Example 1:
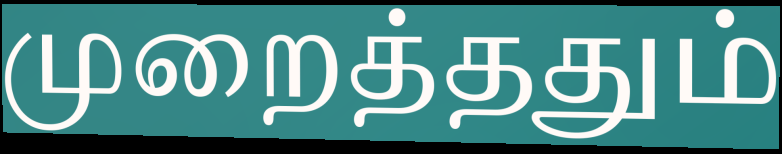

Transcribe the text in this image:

முறைத்ததும்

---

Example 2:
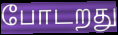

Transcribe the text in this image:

போடறது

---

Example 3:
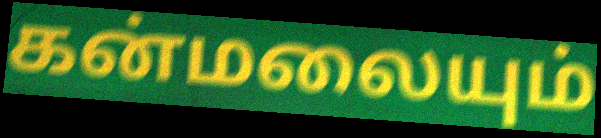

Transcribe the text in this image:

கன்மலையும்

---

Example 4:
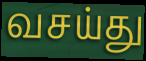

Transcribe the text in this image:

வசய்து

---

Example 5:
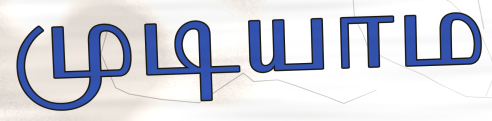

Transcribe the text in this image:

முடியாம